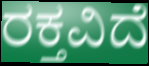
ರಕ್ತವಿದೆ